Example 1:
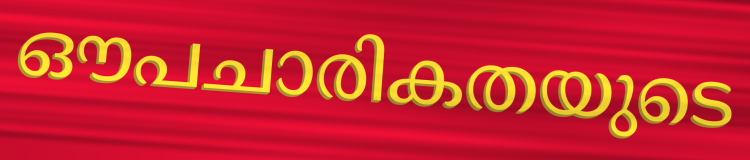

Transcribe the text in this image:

ഔപചാരികതയുടെ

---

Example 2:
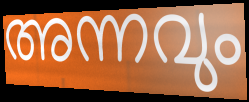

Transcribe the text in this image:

അന്നവും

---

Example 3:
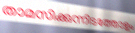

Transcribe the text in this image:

താമസിക്കുന്നിടത്തോളം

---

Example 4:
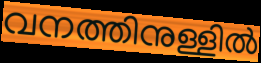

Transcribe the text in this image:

വനത്തിനുള്ളിൽ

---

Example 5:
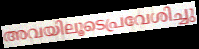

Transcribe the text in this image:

അവയിലൂടെപ്രവേശിച്ചു